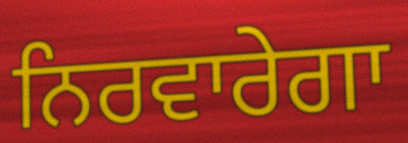
ਨਿਰਵਾਰੇਗਾ